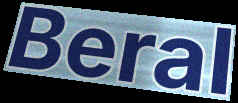
Beral